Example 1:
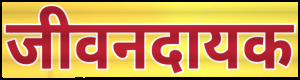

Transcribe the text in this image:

जीवनदायक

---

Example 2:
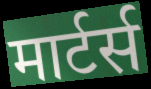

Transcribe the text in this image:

मार्टर्स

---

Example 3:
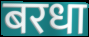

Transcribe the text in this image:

बरधा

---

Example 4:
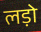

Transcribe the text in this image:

लड़ो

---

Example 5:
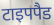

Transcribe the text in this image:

टाइपपैड